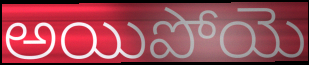
అయిపోయె